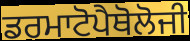
ਡਰਮਾਟੋਪੈਥੋਲੋਜੀ